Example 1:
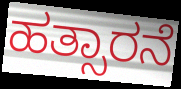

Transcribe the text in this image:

ಹತ್ಸಾರನೆ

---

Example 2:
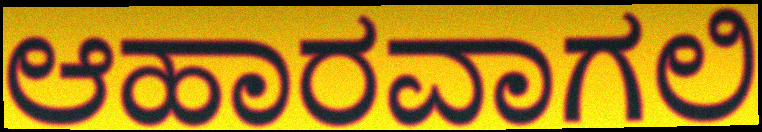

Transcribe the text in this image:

ಆಹಾರವಾಗಲಿ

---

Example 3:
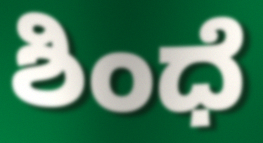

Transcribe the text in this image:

ಶಿಂಧೆ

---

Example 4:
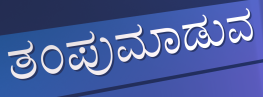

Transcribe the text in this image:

ತಂಪುಮಾಡುವ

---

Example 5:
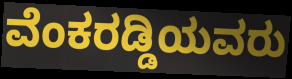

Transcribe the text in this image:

ವೆಂಕರಡ್ಡಿಯವರು